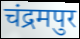
चंद्रमपुर